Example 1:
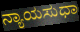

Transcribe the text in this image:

ನ್ಯಾಯಸುಧಾ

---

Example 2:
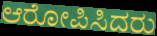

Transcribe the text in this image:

ಆರೋಪಿಸಿದರು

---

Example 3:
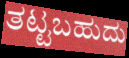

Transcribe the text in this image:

ತಟ್ಟಬಹುದು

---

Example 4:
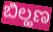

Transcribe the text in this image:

ಬಿಲ್ಹಣ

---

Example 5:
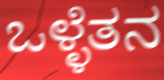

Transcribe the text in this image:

ಒಳ್ಳೆತನ